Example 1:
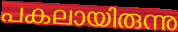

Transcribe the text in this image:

പകലായിരുന്നു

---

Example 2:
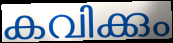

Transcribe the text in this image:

കവിക്കും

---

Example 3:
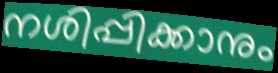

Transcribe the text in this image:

നശിപ്പിക്കാനും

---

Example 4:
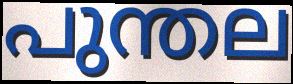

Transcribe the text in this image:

പുന്തല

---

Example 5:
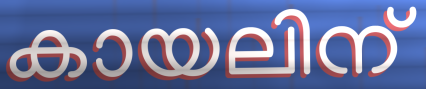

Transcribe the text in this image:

കായലിന്